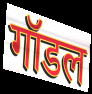
गॉडल